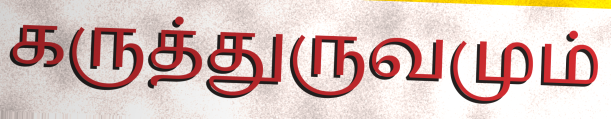
கருத்துருவமும்